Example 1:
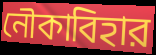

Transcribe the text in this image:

নৌকাবিহার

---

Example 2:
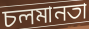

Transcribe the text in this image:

চলমানতা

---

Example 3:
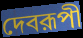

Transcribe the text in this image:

দেবরূপী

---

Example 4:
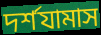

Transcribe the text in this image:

দর্শযামাস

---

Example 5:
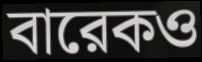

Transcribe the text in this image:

বারেকও